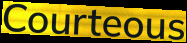
Courteous